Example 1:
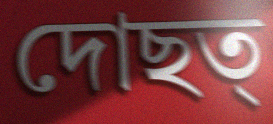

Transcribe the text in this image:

দোছত্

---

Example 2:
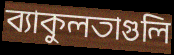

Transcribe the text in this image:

ব্যাকুলতাগুলি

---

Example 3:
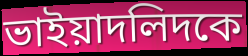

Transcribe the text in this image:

ভাইয়াদলিদকে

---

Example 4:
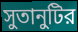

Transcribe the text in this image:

সুতানুটির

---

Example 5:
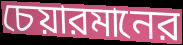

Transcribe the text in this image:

চেয়ারমানের